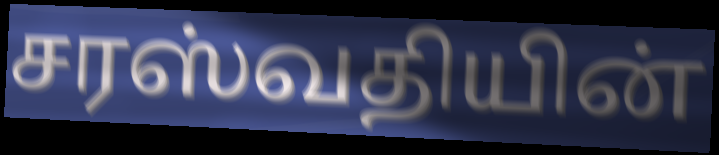
சரஸ்வதியின்